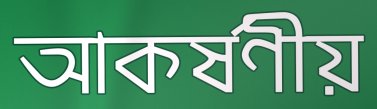
আকৰ্ষণীয়